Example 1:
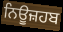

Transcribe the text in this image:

ਨਿਊਜ਼ਹਬ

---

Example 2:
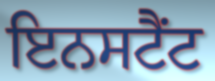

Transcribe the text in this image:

ਇਨਸਟੈਂਟ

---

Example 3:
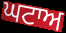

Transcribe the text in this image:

ਘਟਾਅ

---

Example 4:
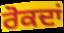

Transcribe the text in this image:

ਰੋਕਦਾਂ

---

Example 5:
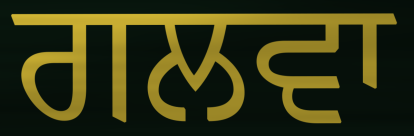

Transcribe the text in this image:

ਗਲਵਾ